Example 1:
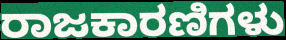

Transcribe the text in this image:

ರಾಜಕಾರಣಿಗಳು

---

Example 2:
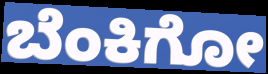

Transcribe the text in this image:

ಬೆಂಕಿಗೋ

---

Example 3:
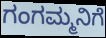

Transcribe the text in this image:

ಗಂಗಮ್ಮನಿಗೆ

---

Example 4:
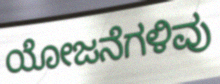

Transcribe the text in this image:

ಯೋಜನೆಗಳಿವು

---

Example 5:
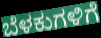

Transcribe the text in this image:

ಬೆಳಕುಗಳಿಗೆ